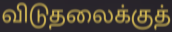
விடுதலைக்குத்